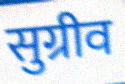
सुग्रीव